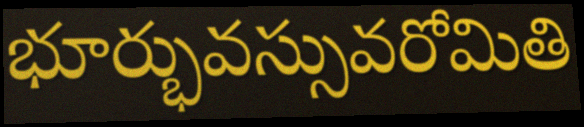
భూర్భువస్సువరోమితి